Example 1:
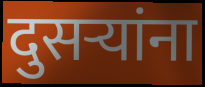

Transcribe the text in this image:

दुसर्‍यांना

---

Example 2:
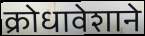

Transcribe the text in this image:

क्रोधावेशाने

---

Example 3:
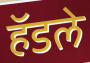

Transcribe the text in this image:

हॅडले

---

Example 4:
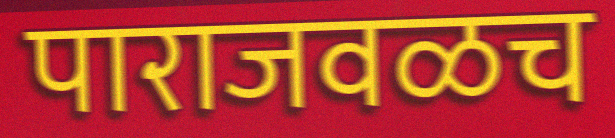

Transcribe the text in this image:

पाराजवळच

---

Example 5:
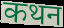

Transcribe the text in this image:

कथन